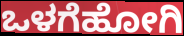
ಒಳಗೆಹೋಗಿ